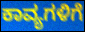
ಕಾವ್ಯಗಳಿಗೆ